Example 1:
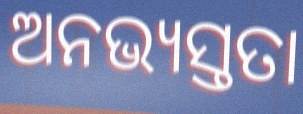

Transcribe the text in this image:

ଅନଭ୍ୟସ୍ତତା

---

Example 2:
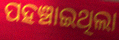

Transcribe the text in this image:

ପହଞ୍ଚାଇଥିଲା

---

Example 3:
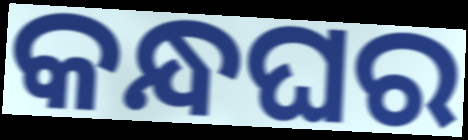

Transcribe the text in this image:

କନ୍ଧଘର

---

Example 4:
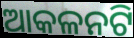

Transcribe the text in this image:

ଆକଳନଟି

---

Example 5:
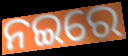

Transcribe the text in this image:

ନଇରେ